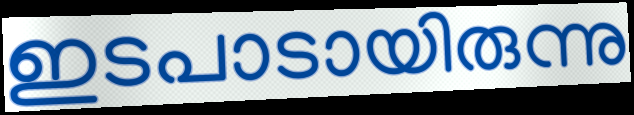
ഇടപാടായിരുന്നു